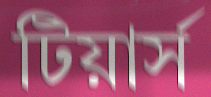
টিয়ার্স